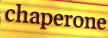
chaperone